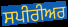
ਸਪੀਰੀਅਰ